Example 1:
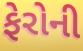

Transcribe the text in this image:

ફેરોની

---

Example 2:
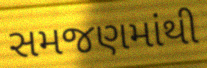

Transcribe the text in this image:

સમજણમાંથી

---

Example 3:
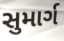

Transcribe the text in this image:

સુમાર્ગ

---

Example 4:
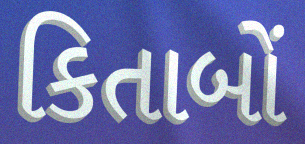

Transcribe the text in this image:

કિતાબોં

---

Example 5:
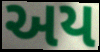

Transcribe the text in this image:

અય